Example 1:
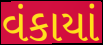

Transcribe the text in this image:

વંકાયાં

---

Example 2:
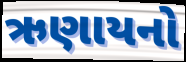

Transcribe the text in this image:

ઋણાયનો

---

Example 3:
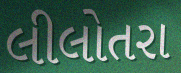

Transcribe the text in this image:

લીલોતરા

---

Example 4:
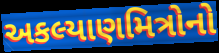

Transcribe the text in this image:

અકલ્યાણમિત્રોનો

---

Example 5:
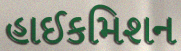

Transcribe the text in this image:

હાઈકમિશન